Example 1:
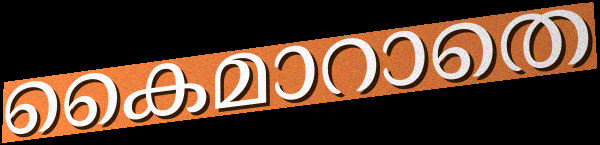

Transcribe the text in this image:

കൈമാറാതെ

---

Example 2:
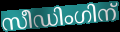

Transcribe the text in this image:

സീഡിംഗിന്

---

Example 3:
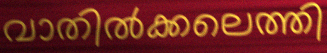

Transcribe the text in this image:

വാതിൽക്കലെത്തി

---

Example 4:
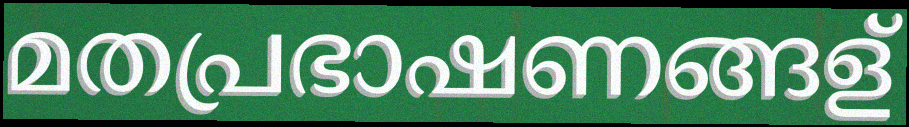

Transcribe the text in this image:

മതപ്രഭാഷണങ്ങള്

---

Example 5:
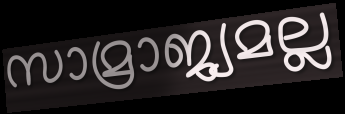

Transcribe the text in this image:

സാമ്രാജ്യമല്ല